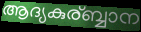
ആദ്യകുര്ബ്ബാന